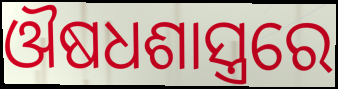
ଔଷଧଶାସ୍ତ୍ରରେ